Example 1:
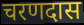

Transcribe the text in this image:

चरणदास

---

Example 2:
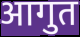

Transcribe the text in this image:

आगुत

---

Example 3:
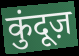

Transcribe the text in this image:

कुंदूज़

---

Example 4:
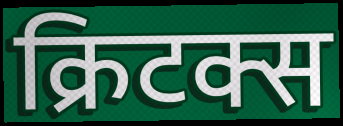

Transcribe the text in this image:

क्रिटक्स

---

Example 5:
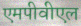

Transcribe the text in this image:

एमपीवीएल